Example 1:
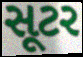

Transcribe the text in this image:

સૂટર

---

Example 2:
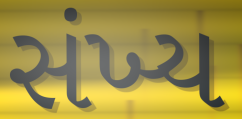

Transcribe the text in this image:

સંખ્ય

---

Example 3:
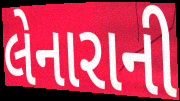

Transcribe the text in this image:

લેનારાની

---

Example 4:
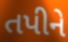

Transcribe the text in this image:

તપીને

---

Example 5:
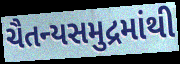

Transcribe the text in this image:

ચૈતન્યસમુદ્રમાંથી